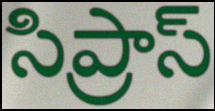
సిప్రాస్